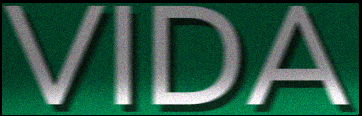
VIDA